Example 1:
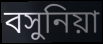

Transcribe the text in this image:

বসুনিয়া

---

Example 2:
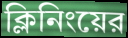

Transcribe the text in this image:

ক্লিনিংয়ের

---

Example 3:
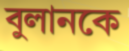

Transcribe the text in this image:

বুলানকে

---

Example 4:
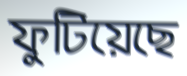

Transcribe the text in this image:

ফুটিয়েছে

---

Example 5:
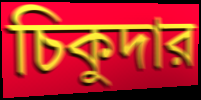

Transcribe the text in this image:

চিকুদার